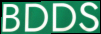
BDDS